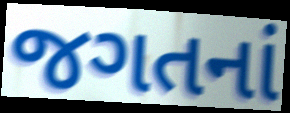
જગતનાં